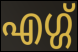
എഗ്ഗ്